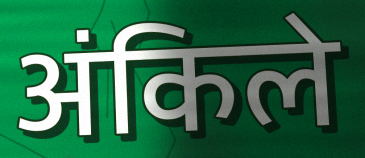
अंकिले